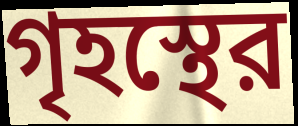
গৃহস্থের